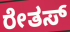
ರೇತಸ್